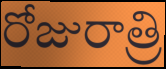
రోజురాత్రి